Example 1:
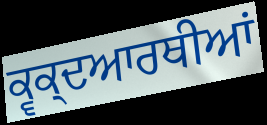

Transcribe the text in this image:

ਕ੍ਵਕ੍ਦਆਰਥੀਆਂ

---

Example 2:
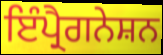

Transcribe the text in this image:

ਇੰਪ੍ਰੈਗਨੇਸ਼ਨ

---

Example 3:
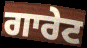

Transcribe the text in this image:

ਗਾਰੇਟ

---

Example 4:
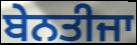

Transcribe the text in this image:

ਬੇਨਤੀਜਾ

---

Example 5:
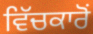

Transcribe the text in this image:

ਵਿੱਚਕਾਰੋਂ